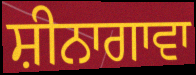
ਸ਼ੀਨਾਗਾਵਾ